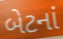
બેટનાં